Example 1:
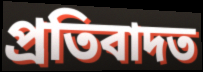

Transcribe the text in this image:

প্ৰতিবাদত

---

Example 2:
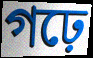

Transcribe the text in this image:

গঢ়ে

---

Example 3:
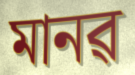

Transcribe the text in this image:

মানৱ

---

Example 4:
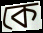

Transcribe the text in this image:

কে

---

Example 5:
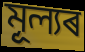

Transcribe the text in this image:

মূল্যৰ